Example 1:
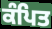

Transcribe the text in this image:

ਕੰਪਿਤ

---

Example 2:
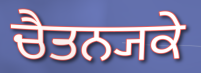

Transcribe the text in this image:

ਚੈਤਨ੍ਯਕੇ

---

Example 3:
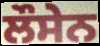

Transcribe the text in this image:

ਲੌਸੇਨ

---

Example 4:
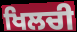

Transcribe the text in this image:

ਖਿਲਚੀ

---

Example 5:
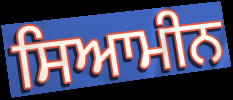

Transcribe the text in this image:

ਸਿਆਮੀਨ